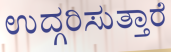
ಉದ್ಗರಿಸುತ್ತಾರೆ